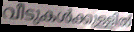
വീടുകൾക്കുള്ളിൽ